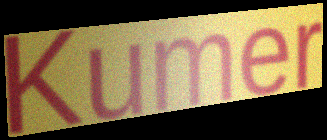
Kumer